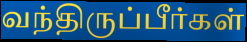
வந்திருப்பீர்கள்